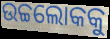
ଉଚ୍ଚଲୋକକୁ